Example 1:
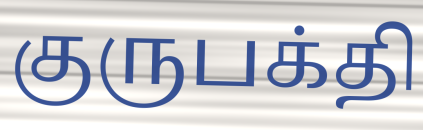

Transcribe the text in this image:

குருபக்தி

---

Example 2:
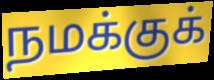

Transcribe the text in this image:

நமக்குக்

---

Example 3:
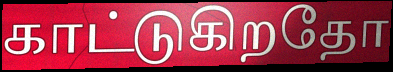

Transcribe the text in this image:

காட்டுகிறதோ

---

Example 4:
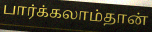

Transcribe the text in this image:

பார்க்கலாம்தான்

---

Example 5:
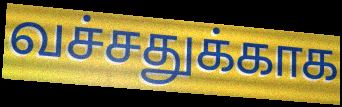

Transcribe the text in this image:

வச்சதுக்காக